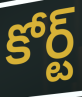
కోర్ట్